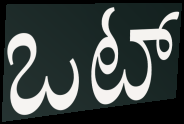
ಒಟ್